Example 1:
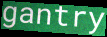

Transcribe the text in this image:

gantry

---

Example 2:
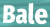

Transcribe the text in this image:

Bale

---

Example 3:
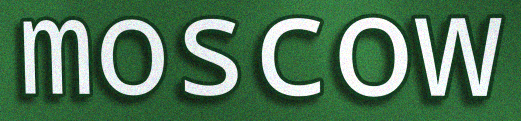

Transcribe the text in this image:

moscow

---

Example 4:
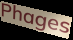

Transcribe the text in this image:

Phages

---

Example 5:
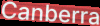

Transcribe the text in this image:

Canberra